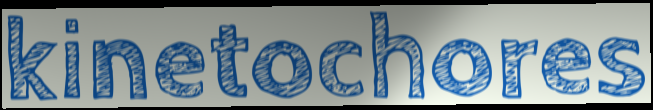
kinetochores